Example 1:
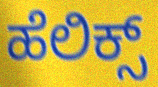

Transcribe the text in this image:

ಹೆಲಿಕ್ಸ್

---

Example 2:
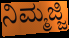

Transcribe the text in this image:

ನಿಮ್ಮಜ್ಜಿ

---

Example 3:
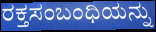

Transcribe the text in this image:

ರಕ್ತಸಂಬಂಧಿಯನ್ನು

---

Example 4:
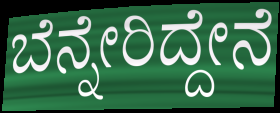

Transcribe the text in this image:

ಬೆನ್ನೇರಿದ್ದೇನೆ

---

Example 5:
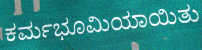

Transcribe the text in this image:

ಕರ್ಮಭೂಮಿಯಾಯಿತು